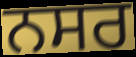
ਨਸਰ